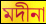
মদীনা